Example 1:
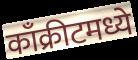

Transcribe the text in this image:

काँक्रीटमध्ये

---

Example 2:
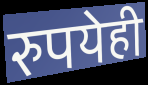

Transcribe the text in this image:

रुपयेही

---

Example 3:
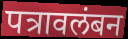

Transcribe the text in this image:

पत्रावलंबन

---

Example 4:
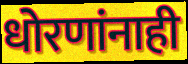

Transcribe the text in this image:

धोरणांनाही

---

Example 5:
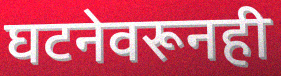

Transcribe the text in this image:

घटनेवरूनही